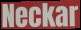
Neckar